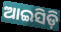
ଆଇସିଡ଼ି